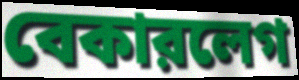
বেকারলেগ